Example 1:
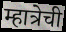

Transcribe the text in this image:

म्हात्रेची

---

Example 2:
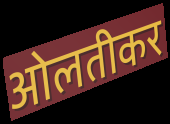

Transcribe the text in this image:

ओलतीकर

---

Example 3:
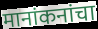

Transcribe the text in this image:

मानांकनांचा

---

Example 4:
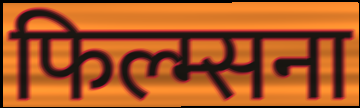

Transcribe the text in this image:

फिल्म्सना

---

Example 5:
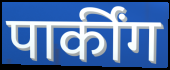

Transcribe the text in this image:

पार्कींग